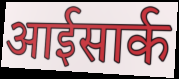
आईसार्क